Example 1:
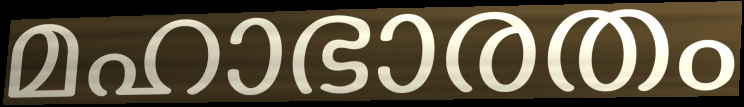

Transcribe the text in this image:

മഹാഭാരതം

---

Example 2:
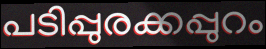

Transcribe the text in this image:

പടിപ്പുരക്കപ്പുറം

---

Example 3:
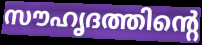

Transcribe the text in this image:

സൗഹൃദത്തിന്റെ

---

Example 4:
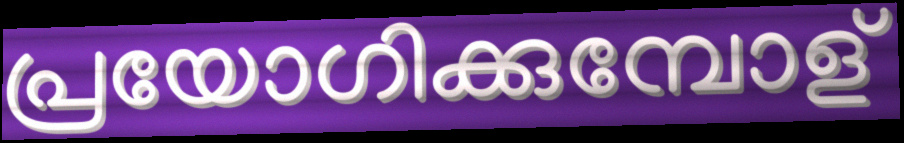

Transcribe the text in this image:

പ്രയോഗിക്കുമ്പോള്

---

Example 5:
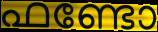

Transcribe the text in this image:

ഫണ്ടോ